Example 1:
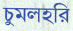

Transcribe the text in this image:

চুমলহরি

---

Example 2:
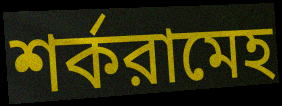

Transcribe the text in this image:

শর্করামেহ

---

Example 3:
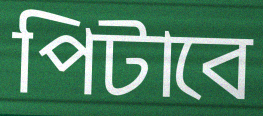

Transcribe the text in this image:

পিটাবে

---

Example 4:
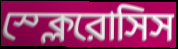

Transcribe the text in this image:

স্ক্লেরোসিস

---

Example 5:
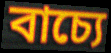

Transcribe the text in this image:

বাচ্যে